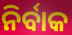
ନିର୍ବାକ